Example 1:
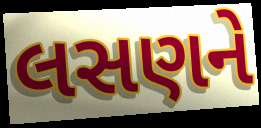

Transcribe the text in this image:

લસણને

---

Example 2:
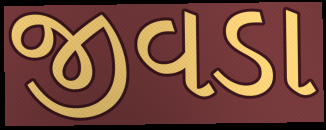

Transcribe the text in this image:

જીવડા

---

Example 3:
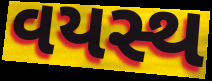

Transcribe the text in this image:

વયસ્થ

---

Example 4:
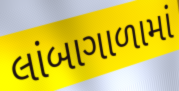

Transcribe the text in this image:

લાંબાગાળામાં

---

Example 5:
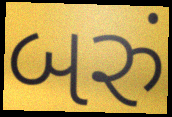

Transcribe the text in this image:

બરું